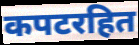
कपटरहित